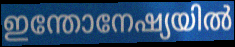
ഇന്തോനേഷ്യയിൽ